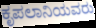
ಕೃಪಲಾನಿಯವರು